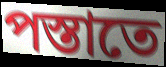
পস্তাতে